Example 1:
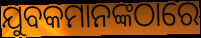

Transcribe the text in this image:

ଯୁବକମାନଙ୍କଠାରେ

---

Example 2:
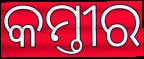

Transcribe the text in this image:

କମ୍ତୀର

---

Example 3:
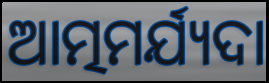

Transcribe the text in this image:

ଆତ୍ମମର୍ଯ୍ୟଦା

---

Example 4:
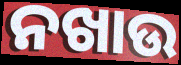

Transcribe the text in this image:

ନଖାଉ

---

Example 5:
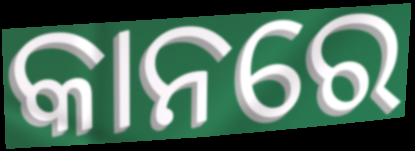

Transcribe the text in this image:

କାନରେ